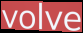
volve